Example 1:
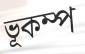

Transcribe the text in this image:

ভূকম্প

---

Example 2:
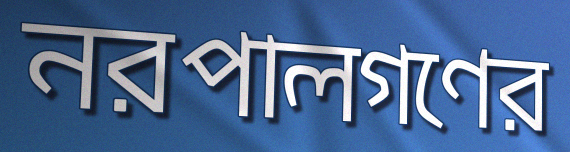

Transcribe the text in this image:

নরপালগণের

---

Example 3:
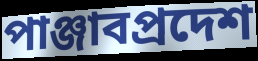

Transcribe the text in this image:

পাঞ্জাবপ্রদেশ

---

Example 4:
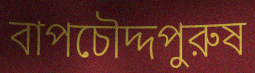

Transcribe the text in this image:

বাপচৌদ্দপুরুষ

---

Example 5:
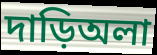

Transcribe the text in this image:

দাড়িঅলা